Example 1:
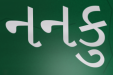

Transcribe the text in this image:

નનકુ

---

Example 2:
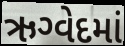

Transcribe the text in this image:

ઋગ્વેદમાં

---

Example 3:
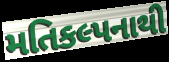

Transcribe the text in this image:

મતિકલ્પનાથી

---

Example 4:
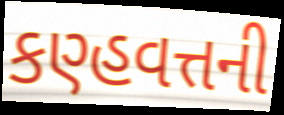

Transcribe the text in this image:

કણ્હવત્તની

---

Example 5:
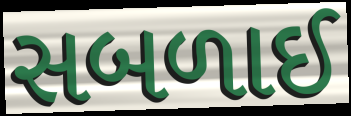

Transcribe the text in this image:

સબળાઈ